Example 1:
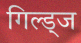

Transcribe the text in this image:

गिल्ड्ज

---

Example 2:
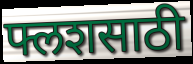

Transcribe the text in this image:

फ्लशसाठी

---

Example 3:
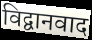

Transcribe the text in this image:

विद्वानवाद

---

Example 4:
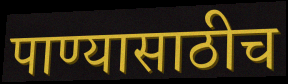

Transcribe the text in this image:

पाण्यासाठीच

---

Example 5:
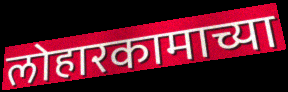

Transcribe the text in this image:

लोहारकामाच्या